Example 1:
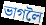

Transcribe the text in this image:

ভাগলৈ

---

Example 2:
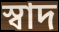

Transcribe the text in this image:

স্বাদ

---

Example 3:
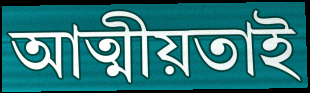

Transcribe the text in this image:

আত্মীয়তাই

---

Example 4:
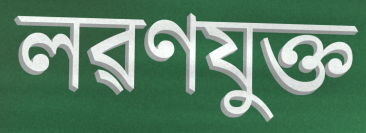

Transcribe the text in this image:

লৱণযুক্ত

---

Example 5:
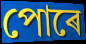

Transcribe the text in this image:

পোৰে